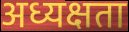
अध्यक्षता